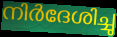
നിർദേശിച്ചു